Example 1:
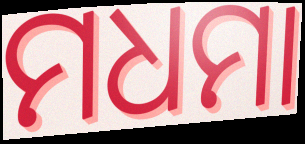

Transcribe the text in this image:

ମଧମା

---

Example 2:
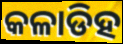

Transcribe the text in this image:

କଳାଡିହ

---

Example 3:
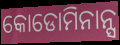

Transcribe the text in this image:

କୋଡୋମିନାନ୍ସ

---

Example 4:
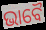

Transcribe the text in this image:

ଭାବୈ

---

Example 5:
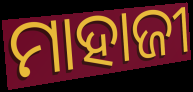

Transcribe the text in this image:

ମାହାଜୀ